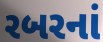
રબરનાં